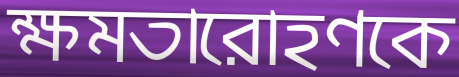
ক্ষমতারোহণকে